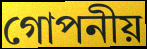
গোপনীয়